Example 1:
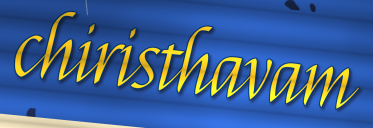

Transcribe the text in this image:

chiristhavam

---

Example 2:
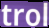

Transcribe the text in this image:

trol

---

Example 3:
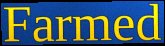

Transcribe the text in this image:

Farmed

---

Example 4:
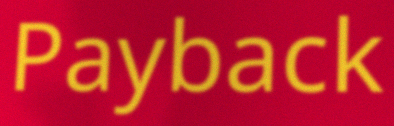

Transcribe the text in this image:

Payback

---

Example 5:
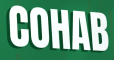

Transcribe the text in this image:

COHAB